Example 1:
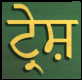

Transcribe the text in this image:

ਟ੍ਰੇਸ਼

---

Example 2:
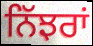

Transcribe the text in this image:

ਨਿੱਝਰਾਂ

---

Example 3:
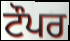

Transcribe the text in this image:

ਟੌਪਰ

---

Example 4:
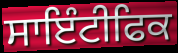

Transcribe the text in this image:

ਸਾਇੰਟੀਫਿਕ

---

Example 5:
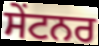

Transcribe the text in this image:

ਸੇਂਟਨਰ